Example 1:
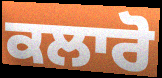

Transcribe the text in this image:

ਕਲਾਰੋ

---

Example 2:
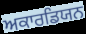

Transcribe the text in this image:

ਅਕਾਰਡਿਯਨ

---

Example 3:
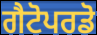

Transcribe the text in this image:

ਗੈਟੋਪਰਡੋ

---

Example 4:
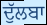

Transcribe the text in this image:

ਦੁੱਲਬਾ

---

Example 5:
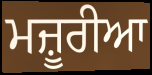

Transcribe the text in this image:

ਮਜ਼ੂਰੀਆ